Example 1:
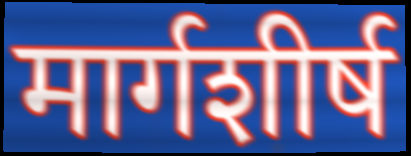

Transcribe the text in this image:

मार्गशीर्ष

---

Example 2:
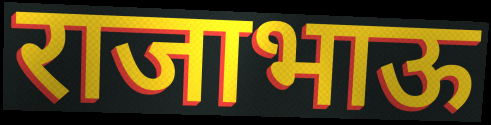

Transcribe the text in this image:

राजाभाऊ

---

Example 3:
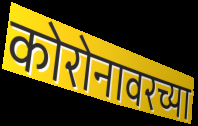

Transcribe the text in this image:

कोरोनावरच्या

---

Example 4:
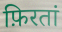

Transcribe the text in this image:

फ़िरतां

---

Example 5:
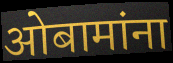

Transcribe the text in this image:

ओबामांना